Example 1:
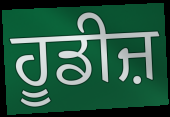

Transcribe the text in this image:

ਹੂਡੀਜ਼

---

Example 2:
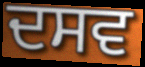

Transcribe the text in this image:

ਦਸਵ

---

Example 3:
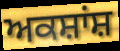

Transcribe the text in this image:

ਅਕਸ਼ਾਂਸ਼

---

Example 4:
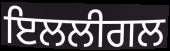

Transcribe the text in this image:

ਇਲਲੀਗਲ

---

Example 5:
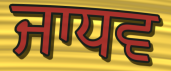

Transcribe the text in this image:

ਜਾਧਵ